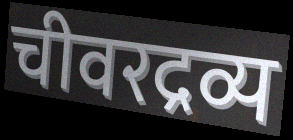
चीवरद्रव्य